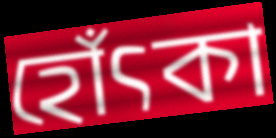
হোঁৎকা